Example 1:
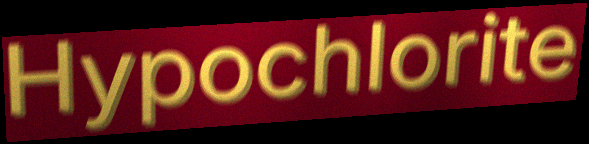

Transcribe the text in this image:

Hypochlorite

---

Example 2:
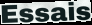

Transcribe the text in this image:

Essais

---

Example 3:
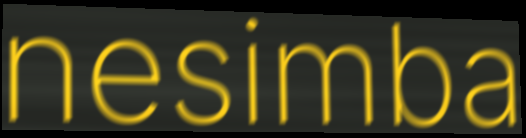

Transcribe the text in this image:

nesimba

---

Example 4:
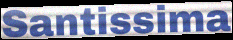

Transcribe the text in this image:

Santissima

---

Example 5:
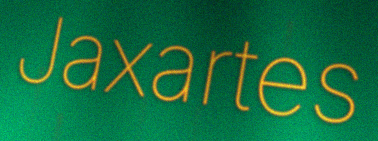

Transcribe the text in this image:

Jaxartes